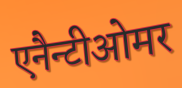
एनैन्टीओमर